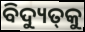
ବିଦ୍ୟୁତ୍‌କୁ